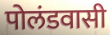
पोलंडवासी